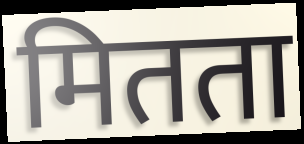
मितता